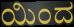
ಯಿಂದ